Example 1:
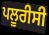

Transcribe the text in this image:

ਪਲੂਰੀਸੀ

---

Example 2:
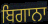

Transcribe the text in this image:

ਬਿਗਾਨਾ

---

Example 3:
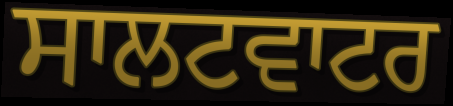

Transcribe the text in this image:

ਸਾਲਟਵਾਟਰ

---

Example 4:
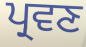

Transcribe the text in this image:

ਪ੍ਰਵਣ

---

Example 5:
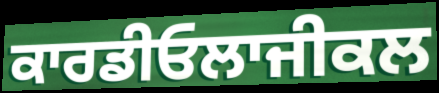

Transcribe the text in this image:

ਕਾਰਡੀਓਲਾਜੀਕਲ